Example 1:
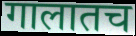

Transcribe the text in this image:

गालातच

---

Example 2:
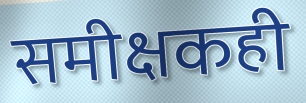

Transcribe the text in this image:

समीक्षकही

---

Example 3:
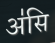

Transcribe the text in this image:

अ॑सि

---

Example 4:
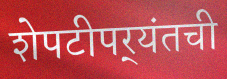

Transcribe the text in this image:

शेपटीपर्यंतची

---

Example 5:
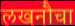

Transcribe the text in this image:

लखनौचा